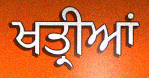
ਖਤ੍ਰੀਆਂ